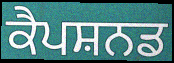
ਕੈਪਸ਼ਨਡ